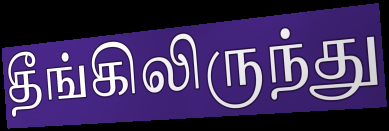
தீங்கிலிருந்து